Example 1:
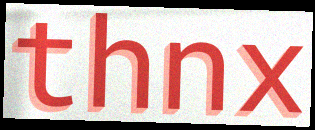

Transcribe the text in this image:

thnx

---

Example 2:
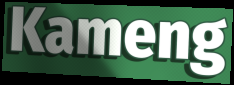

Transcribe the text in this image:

Kameng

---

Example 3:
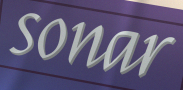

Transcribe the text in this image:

sonar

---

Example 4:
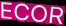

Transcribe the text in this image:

ECOR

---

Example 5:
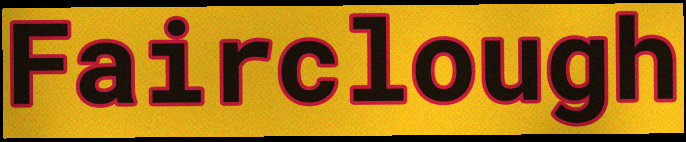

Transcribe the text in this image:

Fairclough